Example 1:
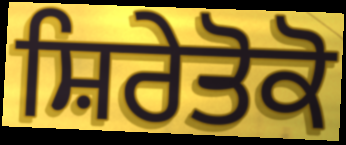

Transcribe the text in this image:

ਸ਼ਿਰੇਤੋਕੋ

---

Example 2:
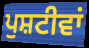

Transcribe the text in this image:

ਪੁਸ਼ਟੀਵਾਂ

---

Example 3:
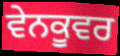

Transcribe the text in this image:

ਵੇਨਕੂਵਰ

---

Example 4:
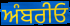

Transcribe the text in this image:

ਅੰਬਰੀਓ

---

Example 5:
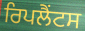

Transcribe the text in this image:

ਰਿਪਲੈਂਟਸ